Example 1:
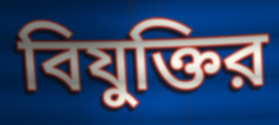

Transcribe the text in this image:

বিযুক্তির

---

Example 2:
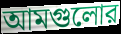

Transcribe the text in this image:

আমগুলোর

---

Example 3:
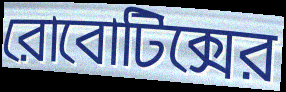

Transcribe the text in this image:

রোবোটিক্সের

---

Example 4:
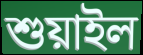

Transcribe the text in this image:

শুয়াইল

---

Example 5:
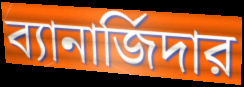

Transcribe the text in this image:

ব্যানার্জিদার